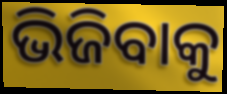
ଭିଜିବାକୁ